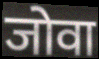
जोवा